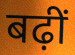
बढ़ीं